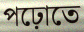
পঢ়োতে